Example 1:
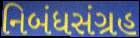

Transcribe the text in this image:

નિબંધસંગ્રહ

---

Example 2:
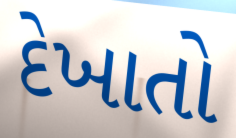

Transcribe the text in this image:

દેખાતો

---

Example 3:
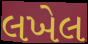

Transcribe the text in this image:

લખેલ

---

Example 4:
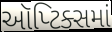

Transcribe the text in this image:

ઑપ્ટિક્સમાં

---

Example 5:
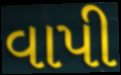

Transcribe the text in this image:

વાપી